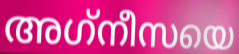
അഗ്‌നീസയെ